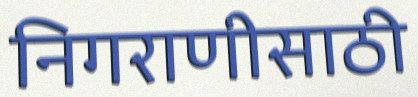
निगराणीसाठी